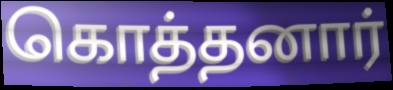
கொத்தனார்